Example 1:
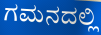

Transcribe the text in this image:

ಗಮನದಲ್ಲಿ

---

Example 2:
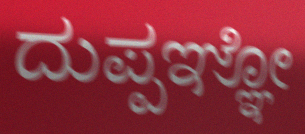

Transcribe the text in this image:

ದುಪ್ಪಞ್ಞೋ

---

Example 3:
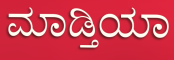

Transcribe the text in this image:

ಮಾಡ್ತಿಯಾ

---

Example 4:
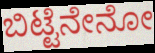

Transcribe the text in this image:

ಬಿಟ್ಟೆನೇನೋ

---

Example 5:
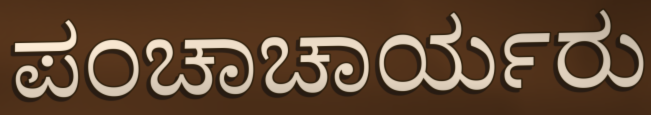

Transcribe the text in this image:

ಪಂಚಾಚಾರ್ಯರು